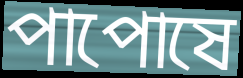
পাপোষে